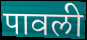
पावली